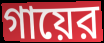
গায়ের